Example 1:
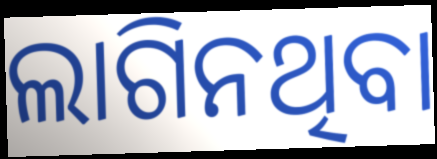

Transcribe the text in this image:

ଲାଗିନଥିବା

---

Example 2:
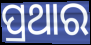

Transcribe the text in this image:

ପ୍ରଥାର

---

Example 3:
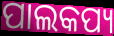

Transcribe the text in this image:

ପାଲକପ୍ୟ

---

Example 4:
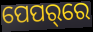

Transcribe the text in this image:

ପେପର୍‌ରେ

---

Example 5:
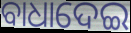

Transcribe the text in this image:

ବାଧାଦେଇ